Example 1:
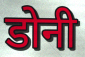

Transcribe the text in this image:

डोनी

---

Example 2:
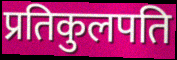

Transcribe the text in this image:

प्रतिकुलपति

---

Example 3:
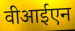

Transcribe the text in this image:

वीआईएन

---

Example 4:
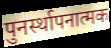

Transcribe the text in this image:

पुनर्स्थापनात्मक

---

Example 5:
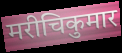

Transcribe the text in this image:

मरीचिकुमार